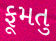
ફૂમતુ